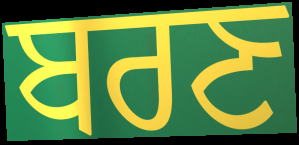
ਬਰਣ